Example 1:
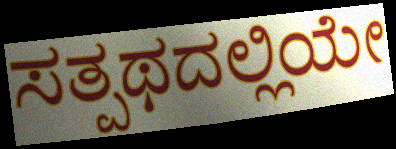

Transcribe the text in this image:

ಸತ್ಪಥದಲ್ಲಿಯೇ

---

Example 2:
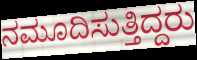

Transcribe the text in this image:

ನಮೂದಿಸುತ್ತಿದ್ದರು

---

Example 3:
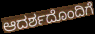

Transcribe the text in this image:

ಆದರ್ಶದೊಂದಿಗೆ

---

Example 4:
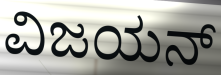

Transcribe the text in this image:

ವಿಜಯನ್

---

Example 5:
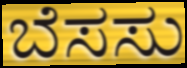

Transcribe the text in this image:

ಬೆಸಸು